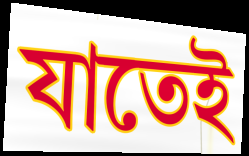
যাতেই